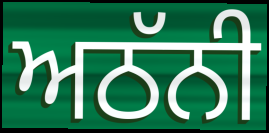
ਅਠੱਨੀ